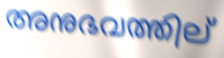
അനുഭവത്തില്